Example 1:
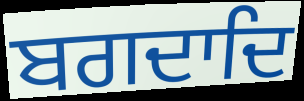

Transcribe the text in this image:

ਬਗਦਾਦਿ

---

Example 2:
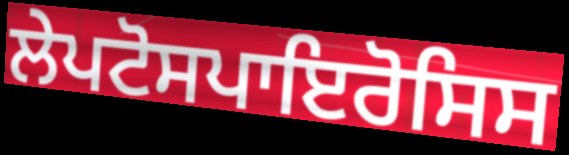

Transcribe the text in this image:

ਲੇਪਟੋਸਪਾਇਰੋਸਿਸ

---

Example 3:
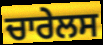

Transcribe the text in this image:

ਚਾਰੇਲਸ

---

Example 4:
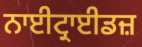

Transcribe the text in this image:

ਨਾਈਟ੍ਰਾਈਡਜ਼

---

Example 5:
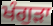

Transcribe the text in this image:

ਖੰਗੁੜਾ